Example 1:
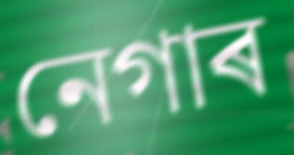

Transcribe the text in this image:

নেগাৰ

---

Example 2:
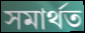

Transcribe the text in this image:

সমাৰ্থত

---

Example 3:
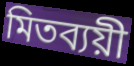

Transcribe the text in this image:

মিতব্যয়ী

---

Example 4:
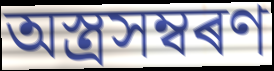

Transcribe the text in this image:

অস্ত্ৰসম্বৰণ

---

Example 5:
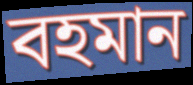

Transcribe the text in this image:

বহমান